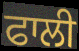
ਫਾਲੀ